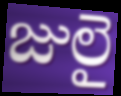
జులై